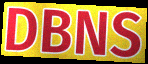
DBNS